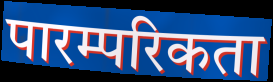
पारम्परिकता